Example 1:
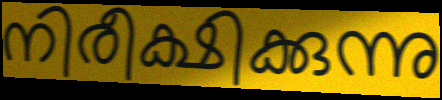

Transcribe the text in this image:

നിരീക്ഷിക്കുന്നു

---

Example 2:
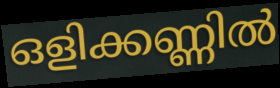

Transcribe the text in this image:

ഒളിക്കണ്ണിൽ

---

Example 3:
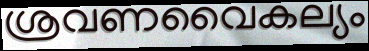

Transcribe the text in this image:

ശ്രവണവൈകല്യം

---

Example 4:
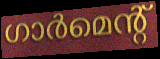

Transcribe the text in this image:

ഗാർമെന്റ്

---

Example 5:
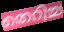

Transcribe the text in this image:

തെറിച്ച